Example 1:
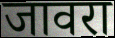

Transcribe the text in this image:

जावरा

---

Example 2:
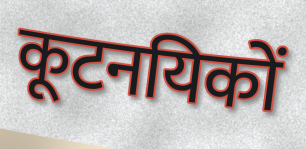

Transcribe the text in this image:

कूटनयिकों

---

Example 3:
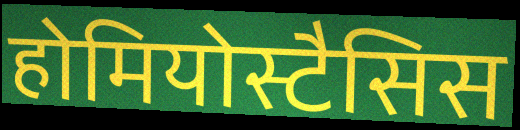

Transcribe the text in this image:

होमियोस्टैसिस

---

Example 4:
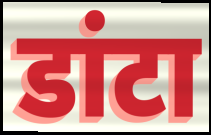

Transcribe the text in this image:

डांटा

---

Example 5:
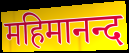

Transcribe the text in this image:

महिमानन्द